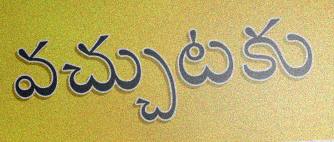
వచ్చుటకు